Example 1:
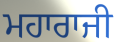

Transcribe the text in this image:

ਮਹਾਰਾਜੀ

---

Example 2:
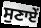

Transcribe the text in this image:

ਸੁਣਾਏਂ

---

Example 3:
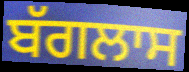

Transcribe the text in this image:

ਬੱਗਲਾਸ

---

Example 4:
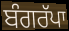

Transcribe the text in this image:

ਬੰਗਰੱਪਾ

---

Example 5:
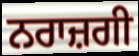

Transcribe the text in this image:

ਨਰਾਜ਼ਗੀ